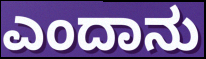
ಎಂದಾನು